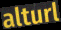
alturl